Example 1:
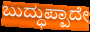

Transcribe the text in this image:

ಬುದ್ಧುಪ್ಪಾದೇ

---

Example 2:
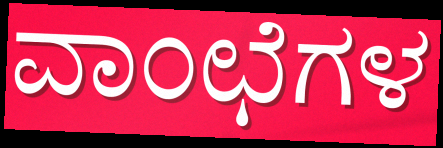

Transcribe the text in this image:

ವಾಂಛೆಗಳ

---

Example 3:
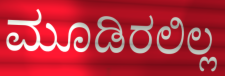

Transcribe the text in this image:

ಮೂಡಿರಲಿಲ್ಲ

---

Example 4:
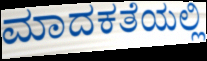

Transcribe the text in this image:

ಮಾದಕತೆಯಲ್ಲಿ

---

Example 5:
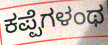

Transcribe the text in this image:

ಕಪ್ಪೆಗಳಂಥ